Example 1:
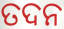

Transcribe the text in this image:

ତଦନ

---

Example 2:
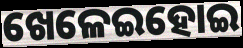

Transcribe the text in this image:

ଖେଳେଇହୋଇ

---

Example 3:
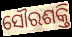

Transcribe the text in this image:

ସୌରଶକ୍ତି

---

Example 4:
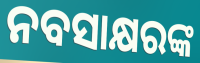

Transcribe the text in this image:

ନବସାକ୍ଷରଙ୍କ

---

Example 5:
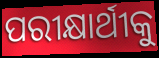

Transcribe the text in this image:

ପରୀକ୍ଷାର୍ଥୀକୁ